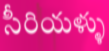
సీరియళ్ళు